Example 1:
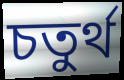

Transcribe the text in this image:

চতুর্থ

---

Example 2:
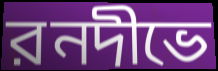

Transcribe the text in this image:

রনদীভে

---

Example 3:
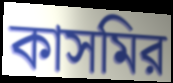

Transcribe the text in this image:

কাসমির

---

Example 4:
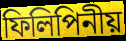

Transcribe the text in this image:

ফিলিপিনীয়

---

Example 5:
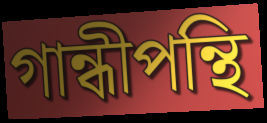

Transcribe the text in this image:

গান্ধীপন্থি